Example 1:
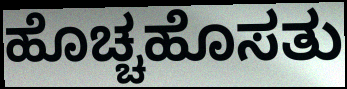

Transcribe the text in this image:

ಹೊಚ್ಚಹೊಸತು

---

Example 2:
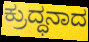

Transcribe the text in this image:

ಕ್ರುದ್ಧನಾದ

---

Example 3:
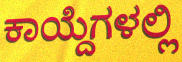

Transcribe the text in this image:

ಕಾಯ್ದೆಗಳಲ್ಲಿ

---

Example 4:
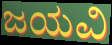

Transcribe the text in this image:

ಜಯವಿ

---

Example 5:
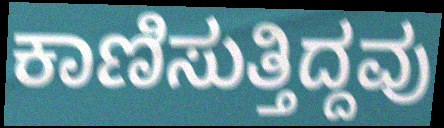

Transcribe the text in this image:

ಕಾಣಿಸುತ್ತಿದ್ದವು